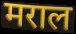
मराल